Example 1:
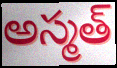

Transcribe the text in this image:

అస్మత్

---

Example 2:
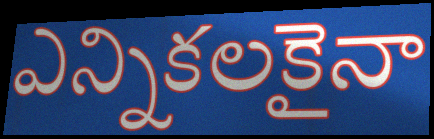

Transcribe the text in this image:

ఎన్నికలకైనా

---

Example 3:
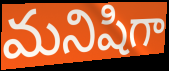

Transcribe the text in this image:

మనిషిగా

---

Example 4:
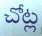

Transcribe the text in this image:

చోట్ల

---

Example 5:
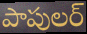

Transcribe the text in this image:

పాపులర్